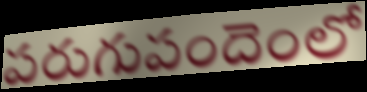
పరుగుపందెంలో